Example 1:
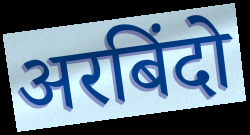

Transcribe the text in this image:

अरबिंदो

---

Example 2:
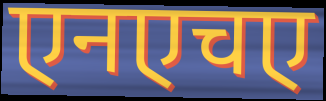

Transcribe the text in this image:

एनएचए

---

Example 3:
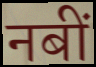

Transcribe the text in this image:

नबीं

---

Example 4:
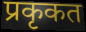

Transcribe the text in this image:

प्रकृकत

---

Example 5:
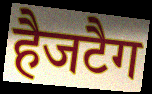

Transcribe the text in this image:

हैजटैग